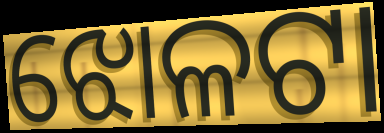
ଝୋଳଟା